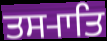
ਤਸ੍ਮਾਤਿ